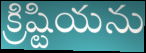
క్రిష్టియను